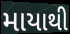
માયાથી